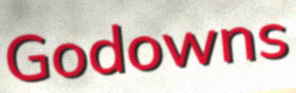
Godowns